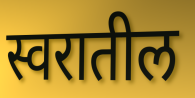
स्वरातील